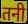
तनी